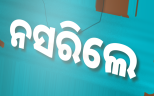
ନସରିଲେ